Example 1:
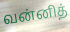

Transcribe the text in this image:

வன்னித்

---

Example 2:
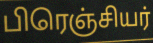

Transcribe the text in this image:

பிரெஞ்சியர்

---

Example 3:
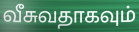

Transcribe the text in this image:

வீசுவதாகவும்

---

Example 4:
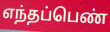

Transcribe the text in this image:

எந்தப்பெண்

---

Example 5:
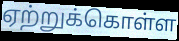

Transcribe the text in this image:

ஏற்றுக்கொள்ள